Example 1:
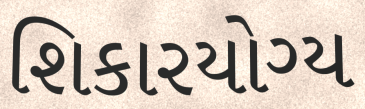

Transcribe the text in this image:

શિકારયોગ્ય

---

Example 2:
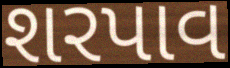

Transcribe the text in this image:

શરપાવ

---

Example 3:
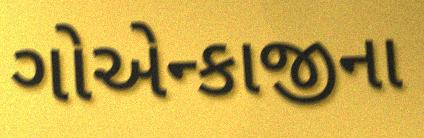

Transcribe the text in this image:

ગોએન્કાજીના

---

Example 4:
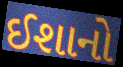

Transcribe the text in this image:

ઈશાનો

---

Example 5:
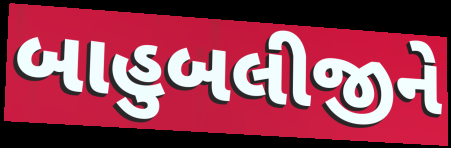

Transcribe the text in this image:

બાહુબલીજીને